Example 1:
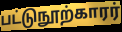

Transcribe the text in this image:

பட்டுநூற்காரர்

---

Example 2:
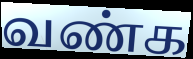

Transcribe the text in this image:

வண்க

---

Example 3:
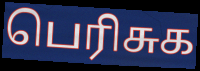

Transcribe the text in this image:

பெரிசுக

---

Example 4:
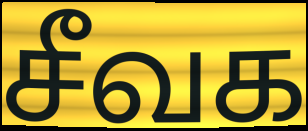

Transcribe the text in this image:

சீவக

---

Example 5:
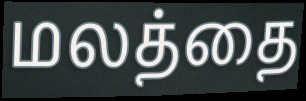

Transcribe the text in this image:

மலத்தை